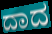
ದಾದ